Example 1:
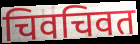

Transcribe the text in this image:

चिवचिवत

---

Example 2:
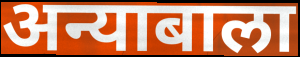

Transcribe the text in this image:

अन्याबाला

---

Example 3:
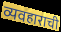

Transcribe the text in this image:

व्यवहाराची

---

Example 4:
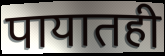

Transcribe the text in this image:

पायातही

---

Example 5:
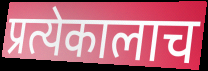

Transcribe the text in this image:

प्रत्येकालाच